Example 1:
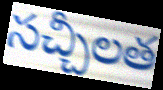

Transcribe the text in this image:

సచ్చీలత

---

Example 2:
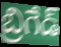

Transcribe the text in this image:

బ్రిగేడ్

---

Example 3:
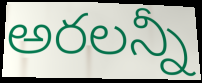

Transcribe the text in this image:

అరలన్నీ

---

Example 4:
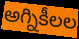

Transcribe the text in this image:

అగ్నికీలల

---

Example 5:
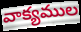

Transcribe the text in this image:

వాక్యముల